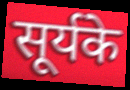
सूर्यके